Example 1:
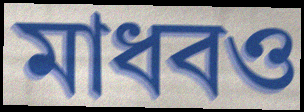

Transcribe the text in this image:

মাধবও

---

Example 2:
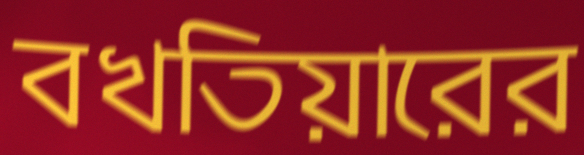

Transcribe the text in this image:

বখতিয়ারের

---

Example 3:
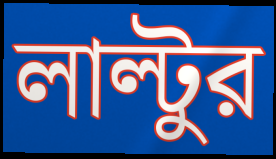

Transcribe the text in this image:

লাল্টুর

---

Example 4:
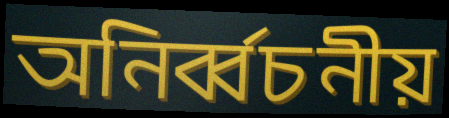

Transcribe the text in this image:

অনির্ব্বচনীয়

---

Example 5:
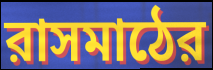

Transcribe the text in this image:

রাসমাঠের